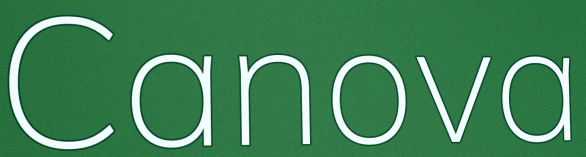
Canova